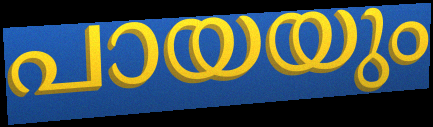
പായയും